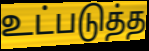
உட்படுத்த